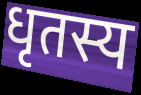
धृतस्य